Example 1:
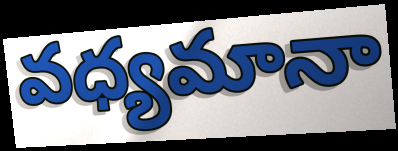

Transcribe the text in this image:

వధ్యమానా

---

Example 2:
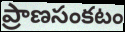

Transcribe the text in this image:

ప్రాణసంకటం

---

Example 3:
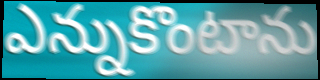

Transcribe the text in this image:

ఎన్నుకొంటాను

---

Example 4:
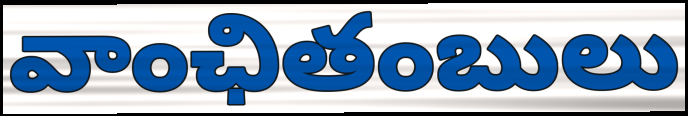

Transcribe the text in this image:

వాంఛితంబులు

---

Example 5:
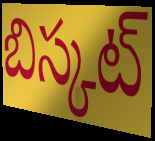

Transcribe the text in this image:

బిస్కట్